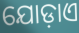
ଯୋଡ଼ାଏ